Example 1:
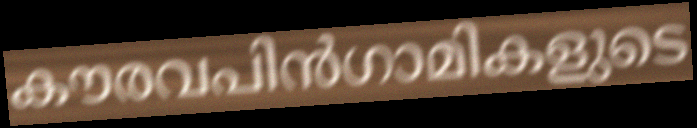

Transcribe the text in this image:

കൗരവപിൻഗാമികളുടെ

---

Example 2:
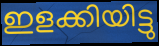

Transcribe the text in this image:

ഇളക്കിയിട്ടു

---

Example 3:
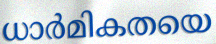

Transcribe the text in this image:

ധാർമികതയെ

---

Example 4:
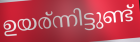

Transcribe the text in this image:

ഉയര്ന്നിട്ടുണ്ട്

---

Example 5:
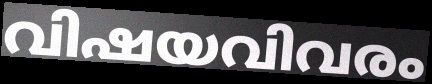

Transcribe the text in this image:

വിഷയവിവരം